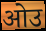
ओउ